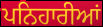
ਪਨਿਹਾਰੀਆਂ